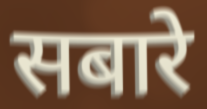
सबारे